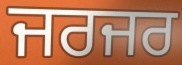
ਜਰਜਰ